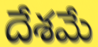
దేశమే